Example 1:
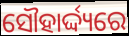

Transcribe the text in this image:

ସୌହାର୍ଦ୍ଦ୍ୟରେ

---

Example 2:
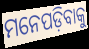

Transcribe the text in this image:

ମନେପଡ଼ିବାକୁ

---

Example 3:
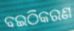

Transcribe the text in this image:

ବଇଠିକରଣ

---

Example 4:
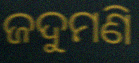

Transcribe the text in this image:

ଜଦୁମଣି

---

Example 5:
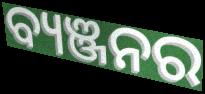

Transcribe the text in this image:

ବ୍ୟଞ୍ଜନର